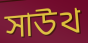
সাউথ